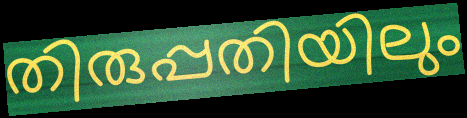
തിരുപ്പതിയിലും